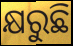
କ୍ଷରୁଛି